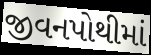
જીવનપોથીમાં